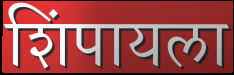
शिंपायला